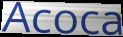
Acoca